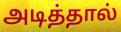
அடித்தால்